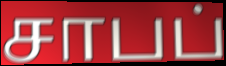
சாபப்